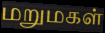
மறுமகள்